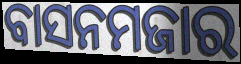
ବାସନମଜାର